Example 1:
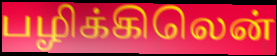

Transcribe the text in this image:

பழிக்கிலென்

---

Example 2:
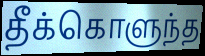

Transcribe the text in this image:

தீக்கொளுந்த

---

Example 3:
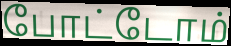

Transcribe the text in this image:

போட்டோம்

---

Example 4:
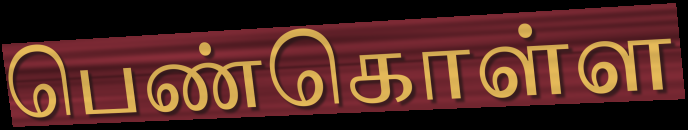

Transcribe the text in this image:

பெண்கொள்ள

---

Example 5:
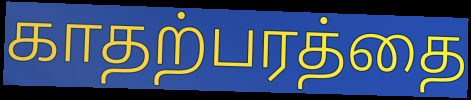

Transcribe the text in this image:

காதற்பரத்தை